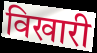
विखारी